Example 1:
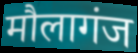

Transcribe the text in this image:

मौलागंज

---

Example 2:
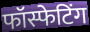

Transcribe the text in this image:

फॉस्फेटिंग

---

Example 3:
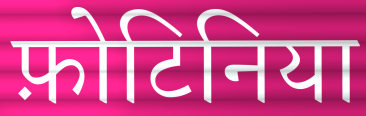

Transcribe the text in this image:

फ़ोटिनिया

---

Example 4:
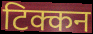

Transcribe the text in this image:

टिक्कन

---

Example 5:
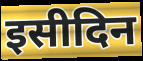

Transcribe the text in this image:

इसीदिन